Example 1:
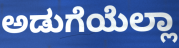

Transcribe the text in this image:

ಅಡುಗೆಯೆಲ್ಲಾ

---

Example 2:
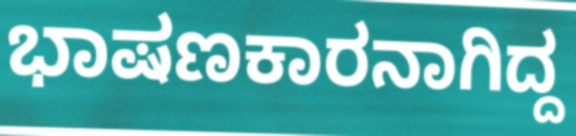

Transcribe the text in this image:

ಭಾಷಣಕಾರನಾಗಿದ್ದ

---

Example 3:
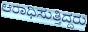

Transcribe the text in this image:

ಆರಾಧಿಸುತ್ತಿದ್ದರು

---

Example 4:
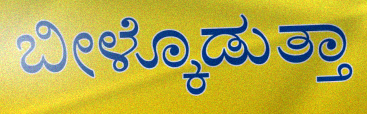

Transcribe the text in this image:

ಬೀಳ್ಕೊಡುತ್ತಾ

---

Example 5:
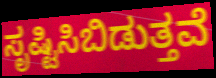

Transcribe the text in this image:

ಸೃಷ್ಟಿಸಿಬಿಡುತ್ತವೆ